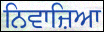
ਨਿਵਾਜ਼ਿਆ